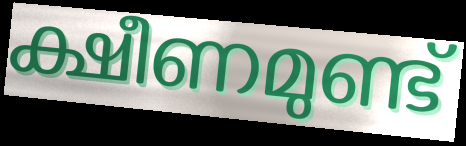
ക്ഷീണമുണ്ട്